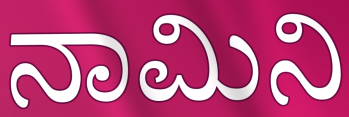
ನಾಮಿನಿ